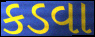
કડવા